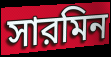
সারমিন